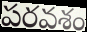
పరవశం